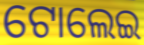
ଟୋଲେଇ